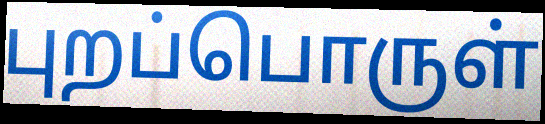
புறப்பொருள்